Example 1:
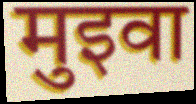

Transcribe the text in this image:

मुइवा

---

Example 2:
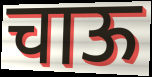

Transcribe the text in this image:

चाऊ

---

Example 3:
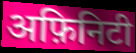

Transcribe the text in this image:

अफ़िनिटी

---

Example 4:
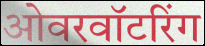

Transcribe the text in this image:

ओवरवॉटरिंग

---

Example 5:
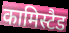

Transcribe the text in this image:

कामिस्टैड